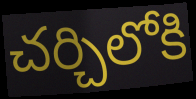
చర్చిలోకి